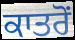
ਕਾਤਰੋੰ